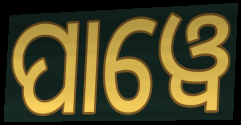
ପାୱେ